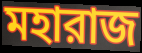
মহারাজ